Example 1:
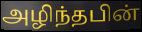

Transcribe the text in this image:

அழிந்தபின்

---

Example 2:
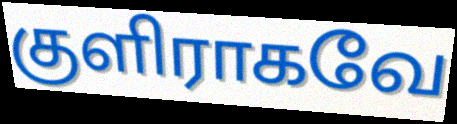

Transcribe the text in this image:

குளிராகவே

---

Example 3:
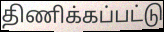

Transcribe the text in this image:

திணிக்கப்பட்டு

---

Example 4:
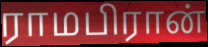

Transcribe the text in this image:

ராமபிரான்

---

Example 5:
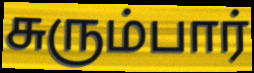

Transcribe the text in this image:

சுரும்பார்